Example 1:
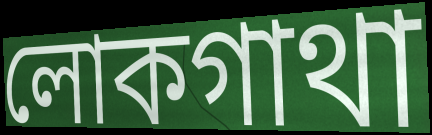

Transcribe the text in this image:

লোকগাথা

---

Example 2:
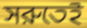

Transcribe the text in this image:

সৰুতেই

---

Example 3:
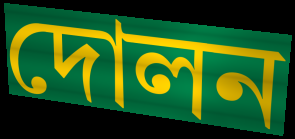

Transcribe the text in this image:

দোলন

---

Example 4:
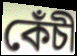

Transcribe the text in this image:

কেঁচী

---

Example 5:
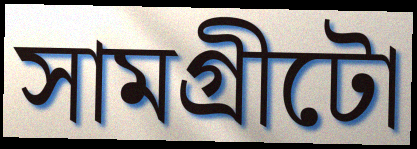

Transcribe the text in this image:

সামগ্ৰীটো